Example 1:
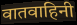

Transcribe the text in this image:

वातवाहिनी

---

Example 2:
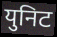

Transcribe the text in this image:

युनिट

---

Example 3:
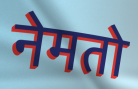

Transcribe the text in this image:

नेमतो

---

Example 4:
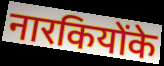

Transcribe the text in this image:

नारकियोंके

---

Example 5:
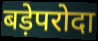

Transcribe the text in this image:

बड़ेपरोदा